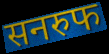
सनरुफ